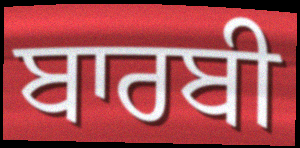
ਬਾਰਬੀ